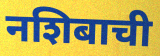
नशिबाची